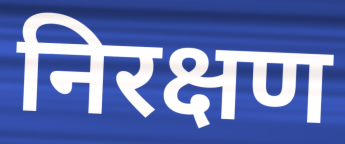
निरक्षण